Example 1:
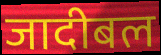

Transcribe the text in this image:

जादीबल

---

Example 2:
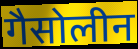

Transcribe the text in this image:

गैसोलीन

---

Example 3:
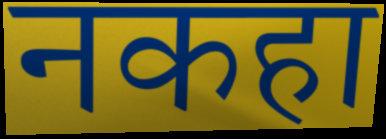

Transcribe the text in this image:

नकहा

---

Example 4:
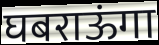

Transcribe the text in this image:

घबराऊंगा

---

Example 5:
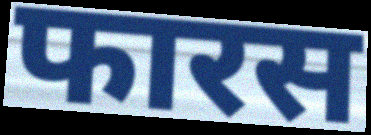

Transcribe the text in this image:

फारस